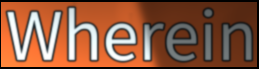
Wherein